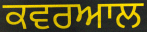
ਕਵਰਆਲ